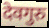
देवगुरु